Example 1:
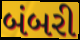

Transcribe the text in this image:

બંબરી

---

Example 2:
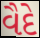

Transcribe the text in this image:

વૈદે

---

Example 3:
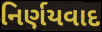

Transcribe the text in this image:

નિર્ણયવાદ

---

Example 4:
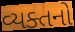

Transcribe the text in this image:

વ્યક્તનો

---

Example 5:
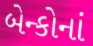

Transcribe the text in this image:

બેન્કોનાં